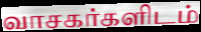
வாசகர்களிடம்